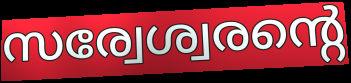
സര്വേശ്വരന്റെ